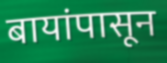
बायांपासून